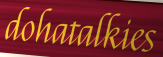
dohatalkies